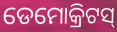
ଡେମୋକ୍ରିଟସ୍